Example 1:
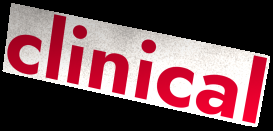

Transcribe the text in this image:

clinical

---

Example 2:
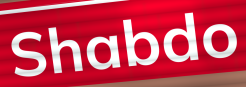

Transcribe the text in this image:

Shabdo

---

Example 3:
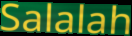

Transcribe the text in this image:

Salalah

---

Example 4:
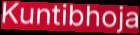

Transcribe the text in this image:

Kuntibhoja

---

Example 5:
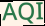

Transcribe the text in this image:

AQI